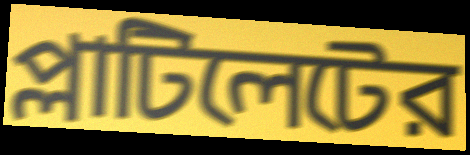
প্লাটিলেটের